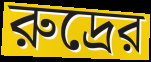
রুদ্রের